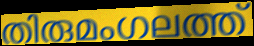
തിരുമംഗലത്ത്